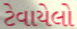
ટેવાયેલો